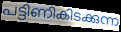
പട്ടിണികിടക്കുന്ന